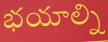
భయాల్ని